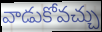
వాడుకోవచ్చు